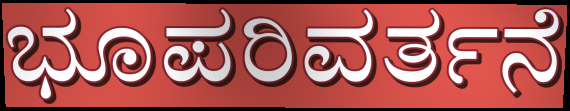
ಭೂಪರಿವರ್ತನೆ